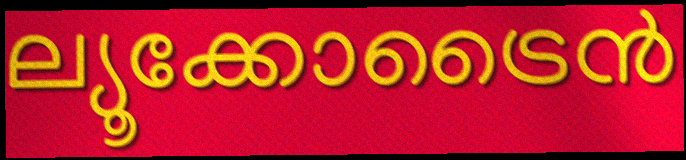
ല്യൂക്കോട്രൈൻ